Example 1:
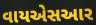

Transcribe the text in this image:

વાયએસઆર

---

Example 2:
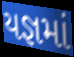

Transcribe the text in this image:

યજ્ઞમાં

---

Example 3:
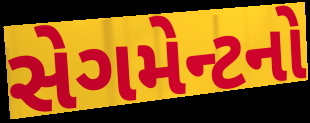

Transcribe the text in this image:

સેગમેન્ટનો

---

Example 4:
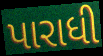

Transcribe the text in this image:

પારાધી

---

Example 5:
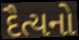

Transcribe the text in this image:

દૈત્યનો